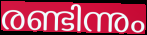
രണ്ടിന്നും